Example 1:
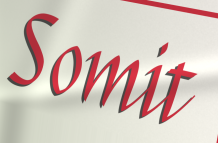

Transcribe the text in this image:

Somit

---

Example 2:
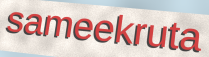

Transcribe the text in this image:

sameekruta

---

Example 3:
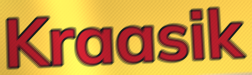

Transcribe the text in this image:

Kraasik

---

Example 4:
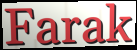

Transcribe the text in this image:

Farak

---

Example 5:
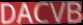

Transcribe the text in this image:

DACVB